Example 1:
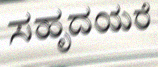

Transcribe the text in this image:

ಸಹೃದಯರೆ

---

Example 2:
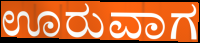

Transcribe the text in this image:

ಊರುವಾಗ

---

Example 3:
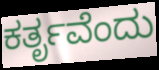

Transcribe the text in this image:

ಕರ್ತೃವೆಂದು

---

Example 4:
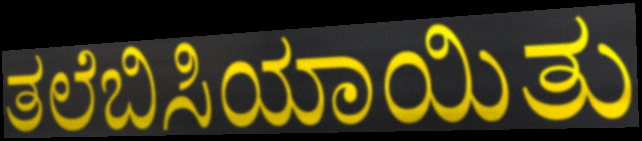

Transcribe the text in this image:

ತಲೆಬಿಸಿಯಾಯಿತು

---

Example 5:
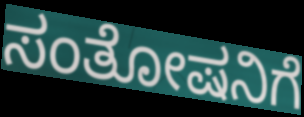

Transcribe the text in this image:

ಸಂತೋಷನಿಗೆ